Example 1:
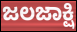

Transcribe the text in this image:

ಜಲಜಾಕ್ಷಿ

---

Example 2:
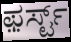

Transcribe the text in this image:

ಫ಼ರ್ಸ್ಟ್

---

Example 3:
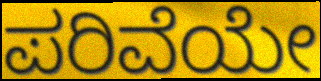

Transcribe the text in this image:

ಪರಿವೆಯೇ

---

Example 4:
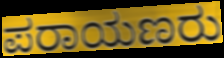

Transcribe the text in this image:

ಪರಾಯಣರು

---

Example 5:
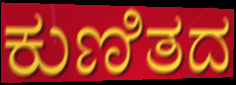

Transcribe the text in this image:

ಕುಣಿತದ